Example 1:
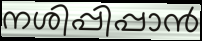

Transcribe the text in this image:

നശിപ്പിപ്പാൻ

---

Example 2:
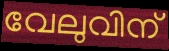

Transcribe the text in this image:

വേലുവിന്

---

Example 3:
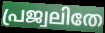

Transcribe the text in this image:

പ്രജ്വലിതേ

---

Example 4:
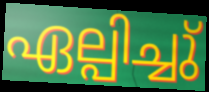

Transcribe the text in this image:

ഏല്പിച്ചു്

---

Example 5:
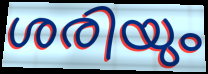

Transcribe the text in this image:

ശരിയും